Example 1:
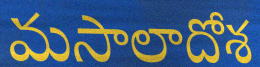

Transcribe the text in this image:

మసాలాదోశ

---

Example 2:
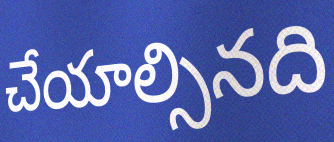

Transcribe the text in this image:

చేయాల్సినది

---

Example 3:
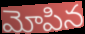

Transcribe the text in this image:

మోపిన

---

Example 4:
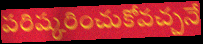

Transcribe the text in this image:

పరిష్కరించుకోవచ్చనే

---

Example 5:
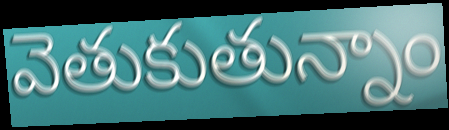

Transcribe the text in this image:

వెతుకుతున్నాం